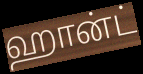
ஹான்ட்